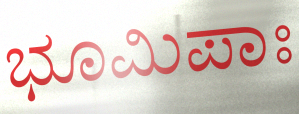
ಭೂಮಿಪಾಃ